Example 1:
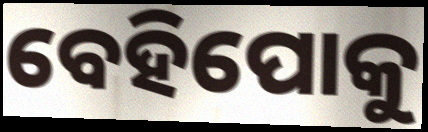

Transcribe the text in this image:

ବେହିପୋକୁ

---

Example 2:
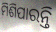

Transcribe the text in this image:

ମିଶିପାରନ୍ତି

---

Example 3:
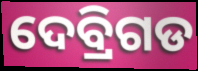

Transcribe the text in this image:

ଦେବ୍ରିଗଡ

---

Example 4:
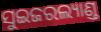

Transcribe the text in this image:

ସୁଇଜରଲ୍ୟାଣ୍ଡ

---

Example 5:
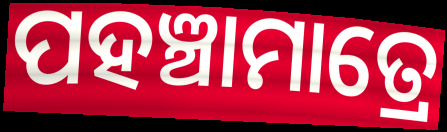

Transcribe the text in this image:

ପହଞ୍ଚାମାତ୍ରେ